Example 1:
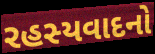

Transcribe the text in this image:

રહસ્યવાદનો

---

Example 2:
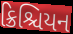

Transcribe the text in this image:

ક્રિશ્ચિયન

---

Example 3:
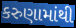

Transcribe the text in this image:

કરુણામાંથી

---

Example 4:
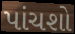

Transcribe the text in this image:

પાંચશો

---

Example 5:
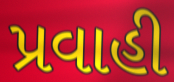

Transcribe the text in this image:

પ્રવાહી